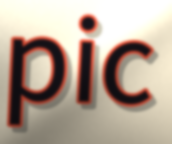
pic